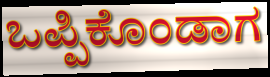
ಒಪ್ಪಿಕೊಂಡಾಗ